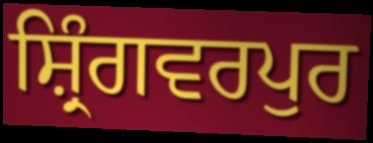
ਸ਼੍ਰਿੰਗਵਰਪੁਰ